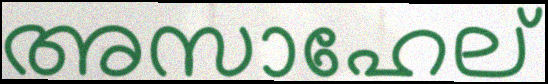
അസാഹേല്